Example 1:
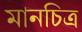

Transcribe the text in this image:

মানচিত্র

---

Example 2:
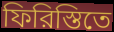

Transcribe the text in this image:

ফিরিস্তিতে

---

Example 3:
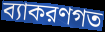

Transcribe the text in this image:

ব্যাকরণগত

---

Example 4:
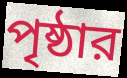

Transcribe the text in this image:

পৃষ্ঠার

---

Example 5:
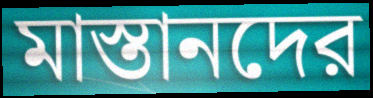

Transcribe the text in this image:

মাস্তানদের